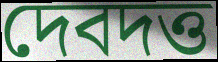
দেবদত্ত